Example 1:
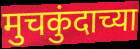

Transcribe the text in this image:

मुचकुंदाच्या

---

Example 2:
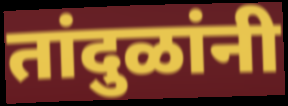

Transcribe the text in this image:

तांदुळांनी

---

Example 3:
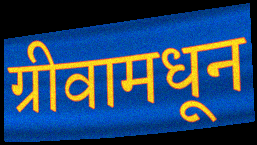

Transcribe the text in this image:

ग्रीवामधून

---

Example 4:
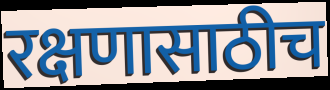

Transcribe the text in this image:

रक्षणासाठीच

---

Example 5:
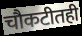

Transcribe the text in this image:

चौकटीतही